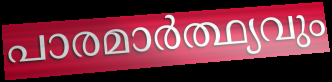
പാരമാർത്ഥ്യവും